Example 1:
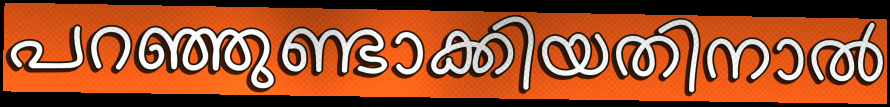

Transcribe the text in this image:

പറഞ്ഞുണ്ടാക്കിയതിനാൽ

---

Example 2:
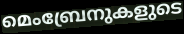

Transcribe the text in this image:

മെംബ്രേനുകളുടെ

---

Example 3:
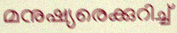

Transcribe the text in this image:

മനുഷ്യരെക്കുറിച്ച്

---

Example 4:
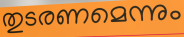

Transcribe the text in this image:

തുടരണമെന്നും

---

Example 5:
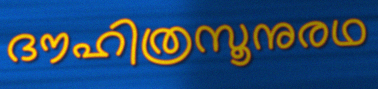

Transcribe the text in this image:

ദൗഹിത്രസൂനുരഥ